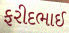
ફરીદભાઈ